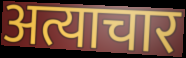
अत्याचार